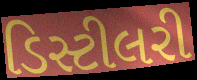
ડિસ્ટીલરી